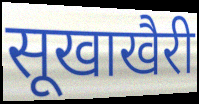
सूखाखैरी